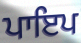
ਪਾਇਪ